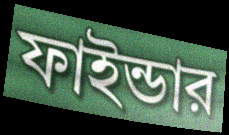
ফাইন্ডার